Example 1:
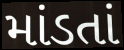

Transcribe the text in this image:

માંડતાં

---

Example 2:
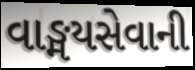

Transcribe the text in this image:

વાઙ્મયસેવાની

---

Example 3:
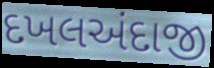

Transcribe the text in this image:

દખલઅંદાજી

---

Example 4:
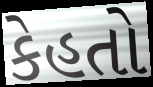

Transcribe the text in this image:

કેહતો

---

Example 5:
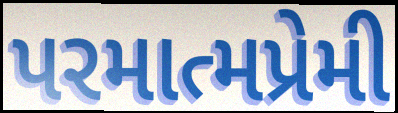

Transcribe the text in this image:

પરમાત્મપ્રેમી